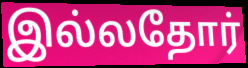
இல்லதோர்